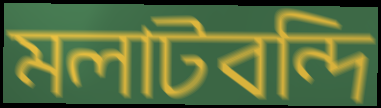
মলাটবন্দি